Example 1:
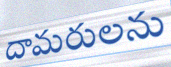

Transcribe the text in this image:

దామరులను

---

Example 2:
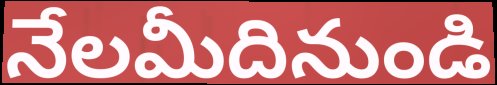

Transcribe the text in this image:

నేలమీదినుండి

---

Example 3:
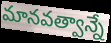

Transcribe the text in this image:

మానవత్వాన్నే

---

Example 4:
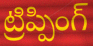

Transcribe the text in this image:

ట్రిప్పింగ్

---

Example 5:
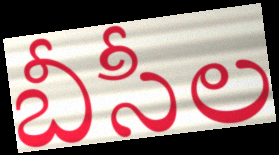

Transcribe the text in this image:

బీసీల